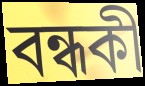
বন্ধকী